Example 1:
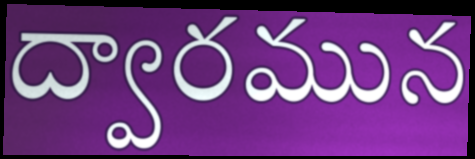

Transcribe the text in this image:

ద్వారమున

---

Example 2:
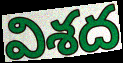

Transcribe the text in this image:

విశద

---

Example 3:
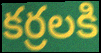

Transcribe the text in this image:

కర్రలకి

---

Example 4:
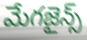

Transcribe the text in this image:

మేగజైన్స్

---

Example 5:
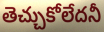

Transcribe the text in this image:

తెచ్చుకోలేదనీ